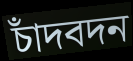
চাঁদবদন